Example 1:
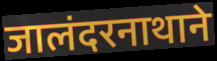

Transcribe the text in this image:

जालंदरनाथाने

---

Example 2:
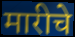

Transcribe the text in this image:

मारीचे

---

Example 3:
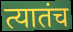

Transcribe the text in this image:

त्यातंच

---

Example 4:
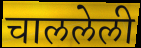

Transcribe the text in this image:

चाललेली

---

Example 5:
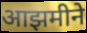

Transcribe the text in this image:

आझमीने